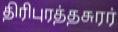
திரிபுரத்தசுரர்